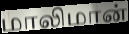
மாலிமான்